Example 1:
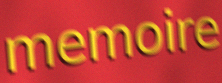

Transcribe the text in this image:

memoire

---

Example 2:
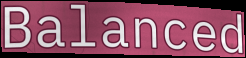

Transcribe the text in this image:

Balanced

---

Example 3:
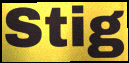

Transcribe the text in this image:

Stig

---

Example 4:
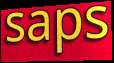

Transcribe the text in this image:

saps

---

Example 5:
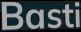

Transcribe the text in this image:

Basti